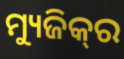
ମ୍ୟୁଜିକ୍‌ର